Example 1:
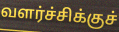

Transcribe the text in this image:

வளர்ச்சிக்குச்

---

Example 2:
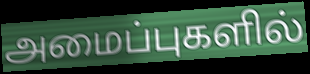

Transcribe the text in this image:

அமைப்புகளில்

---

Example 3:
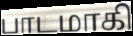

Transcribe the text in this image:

பாடமாகி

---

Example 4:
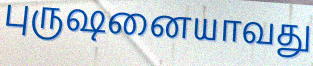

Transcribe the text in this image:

புருஷனையாவது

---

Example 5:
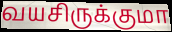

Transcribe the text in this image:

வயசிருக்குமா